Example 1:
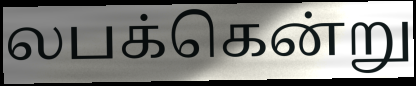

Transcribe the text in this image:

லபக்கென்று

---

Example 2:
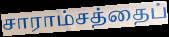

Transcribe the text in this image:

சாராம்சத்தைப்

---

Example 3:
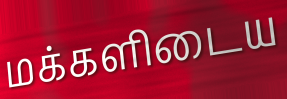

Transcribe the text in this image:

மக்களிடைய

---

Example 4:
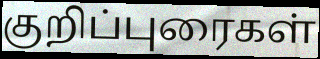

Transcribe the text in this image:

குறிப்புரைகள்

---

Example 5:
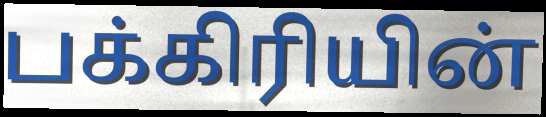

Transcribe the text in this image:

பக்கிரியின்